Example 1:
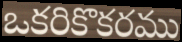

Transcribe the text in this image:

ఒకరికొకరము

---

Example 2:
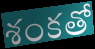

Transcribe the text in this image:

శంకతో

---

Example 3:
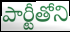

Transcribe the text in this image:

పార్టీతోని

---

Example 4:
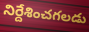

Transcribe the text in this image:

నిర్దేశించగలడు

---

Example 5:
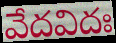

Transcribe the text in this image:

వేదవిదః